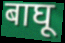
बाघू